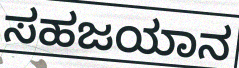
ಸಹಜಯಾನ